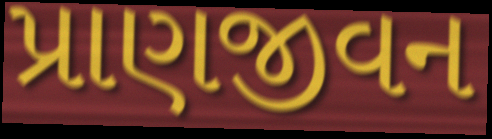
પ્રાણજીવન